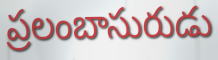
ప్రలంబాసురుడు